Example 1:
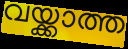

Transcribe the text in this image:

വയ്ക്കാത്ത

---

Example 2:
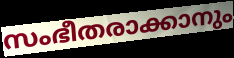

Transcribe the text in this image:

സംഭീതരാക്കാനും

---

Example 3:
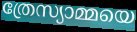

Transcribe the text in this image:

ത്രേസ്യാമ്മയെ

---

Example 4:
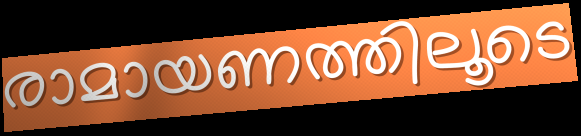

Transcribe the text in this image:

രാമായണത്തിലൂടെ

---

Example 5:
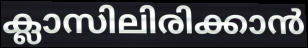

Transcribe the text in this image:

ക്ലാസിലിരിക്കാൻ